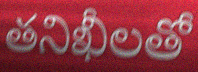
తనిఖీలతో